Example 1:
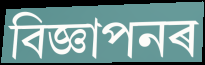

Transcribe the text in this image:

বিজ্ঞাপনৰ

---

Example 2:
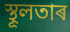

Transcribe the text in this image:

স্থূলতাৰ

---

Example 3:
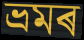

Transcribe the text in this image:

ভ্ৰমৰ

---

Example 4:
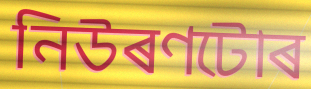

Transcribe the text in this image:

নিউৰণটোৰ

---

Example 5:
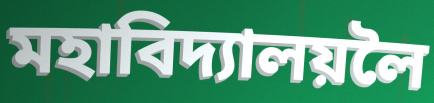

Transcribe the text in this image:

মহাবিদ্যালয়লৈ